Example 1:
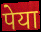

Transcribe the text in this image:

पेया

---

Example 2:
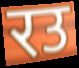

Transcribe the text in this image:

रउ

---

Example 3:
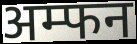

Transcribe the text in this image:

अम्फन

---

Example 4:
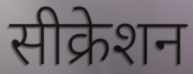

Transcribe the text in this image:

सीक्रेशन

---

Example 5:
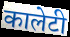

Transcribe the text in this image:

कालेटी